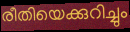
രീതിയെക്കുറിച്ചും